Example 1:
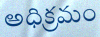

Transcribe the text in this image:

అధిక్రమం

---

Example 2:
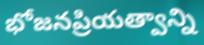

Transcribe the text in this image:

భోజనప్రియత్వాన్ని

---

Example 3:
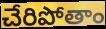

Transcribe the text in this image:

చేరిపోతాం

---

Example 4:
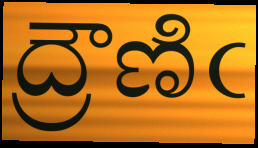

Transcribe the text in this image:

ద్రౌణిఁ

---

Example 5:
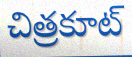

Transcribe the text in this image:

చిత్రకూట్